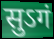
सुऽगं